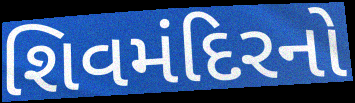
શિવમંદિરનો